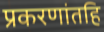
प्रकरणांतहि